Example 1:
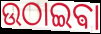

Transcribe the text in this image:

ଉଠାଇଵା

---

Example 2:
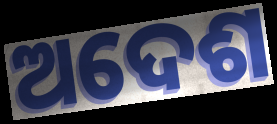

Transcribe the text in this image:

ଅଦେଶ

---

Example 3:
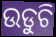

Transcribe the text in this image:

ଉଡୁଚି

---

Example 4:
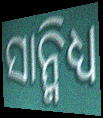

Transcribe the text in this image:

ସାନ୍ମିଧ୍ୟ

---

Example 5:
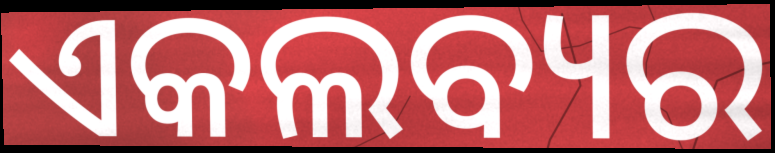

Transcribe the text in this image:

ଏକଲବ୍ୟର